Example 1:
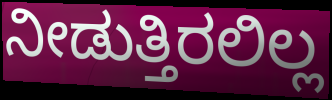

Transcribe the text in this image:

ನೀಡುತ್ತಿರಲಿಲ್ಲ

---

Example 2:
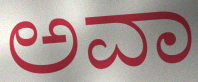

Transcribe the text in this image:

ಅವಾ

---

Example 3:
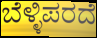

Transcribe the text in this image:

ಬೆಳ್ಳಿಪರದೆ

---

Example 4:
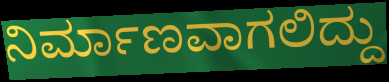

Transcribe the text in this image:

ನಿರ್ಮಾಣವಾಗಲಿದ್ದು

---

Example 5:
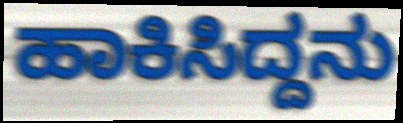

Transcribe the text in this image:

ಹಾಕಿಸಿದ್ದನು